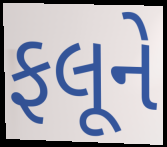
ફલૂને